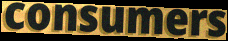
consumers